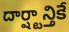
దార్ష్టాన్తికే